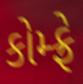
કોમ્ફ્રે